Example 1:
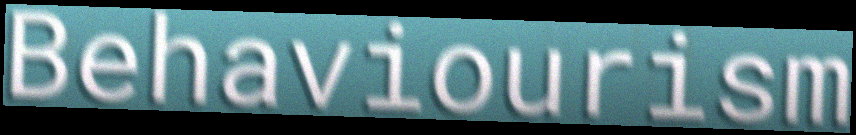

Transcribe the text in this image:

Behaviourism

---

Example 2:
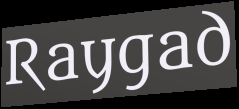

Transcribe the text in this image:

Raygad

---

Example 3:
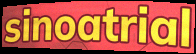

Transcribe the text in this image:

sinoatrial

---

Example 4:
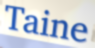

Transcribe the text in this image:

Taine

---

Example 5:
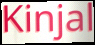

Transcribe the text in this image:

Kinjal